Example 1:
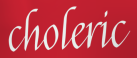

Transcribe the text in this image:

choleric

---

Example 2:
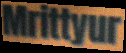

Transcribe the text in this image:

Mrittyur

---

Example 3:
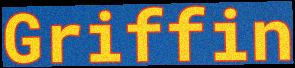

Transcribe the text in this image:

Griffin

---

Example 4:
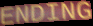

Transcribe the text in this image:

ENDING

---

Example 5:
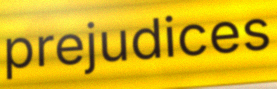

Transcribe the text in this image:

prejudices